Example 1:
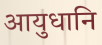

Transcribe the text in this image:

आयुधानि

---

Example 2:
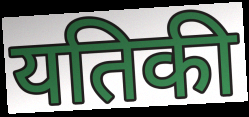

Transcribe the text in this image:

यतिकी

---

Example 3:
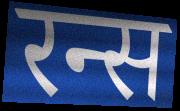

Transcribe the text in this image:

रन्स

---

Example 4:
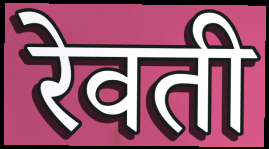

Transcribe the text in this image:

रेवती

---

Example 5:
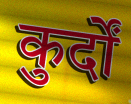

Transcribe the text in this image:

कुर्दों